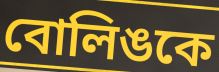
বোলিঙকে